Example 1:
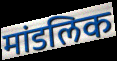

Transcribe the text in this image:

मांडलिक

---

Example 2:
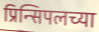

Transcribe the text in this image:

प्रिन्सिपलच्या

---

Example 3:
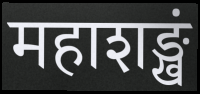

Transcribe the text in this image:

महाशङ्खं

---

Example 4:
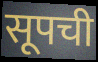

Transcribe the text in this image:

सूपची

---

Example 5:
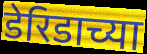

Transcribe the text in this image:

डेरिडाच्या